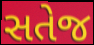
સતેજ